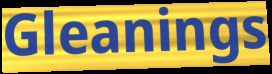
Gleanings